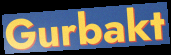
Gurbakt